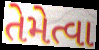
તેમેત્વા